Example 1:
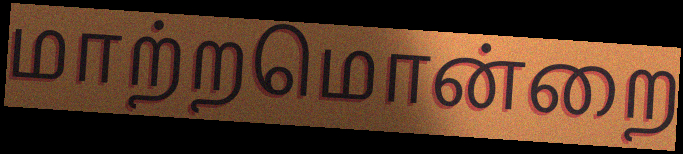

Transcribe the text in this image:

மாற்றமொன்றை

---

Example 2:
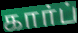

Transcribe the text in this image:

கார்ப்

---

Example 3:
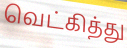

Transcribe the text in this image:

வெட்கித்து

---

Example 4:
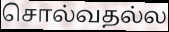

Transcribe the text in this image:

சொல்வதல்ல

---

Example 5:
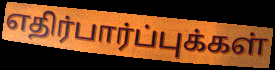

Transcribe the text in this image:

எதிர்பார்ப்புக்கள்